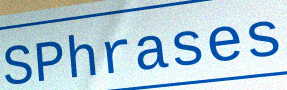
SPhrases